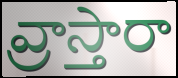
వ్రాస్తారా